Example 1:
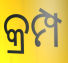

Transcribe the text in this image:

କ୍ରମ୍ପ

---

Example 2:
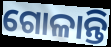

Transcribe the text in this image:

ଗୋଳାନ୍ତି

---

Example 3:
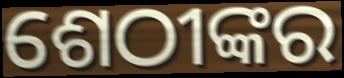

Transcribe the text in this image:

ଶେଠୀଙ୍କର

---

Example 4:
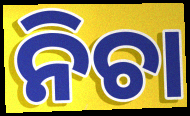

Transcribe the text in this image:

ନିଚା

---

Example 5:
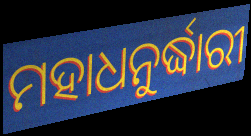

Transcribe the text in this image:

ମହାଧନୁର୍ଦ୍ଧାରୀ